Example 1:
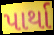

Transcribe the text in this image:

પાર્થા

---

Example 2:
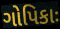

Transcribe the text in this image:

ગોપિકાઃ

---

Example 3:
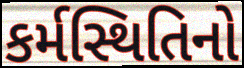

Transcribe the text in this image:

કર્મસ્થિતિનો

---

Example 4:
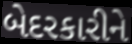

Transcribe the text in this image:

બેદરકારીને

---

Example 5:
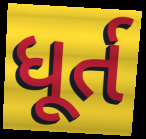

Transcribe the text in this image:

ધૂર્ત